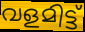
വളമിട്ട്